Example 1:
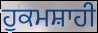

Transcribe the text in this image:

ਹੁਕਮਸ਼ਾਹੀ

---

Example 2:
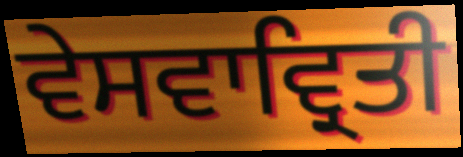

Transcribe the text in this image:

ਵੇਸਵਾਵ੍ਰਿਤੀ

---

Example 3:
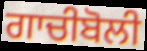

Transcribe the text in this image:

ਗਾਚੀਬੋਲੀ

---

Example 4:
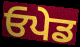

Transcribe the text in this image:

ਓਪੇਡ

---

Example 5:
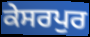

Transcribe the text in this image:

ਕੇਸਰਪੁਰ